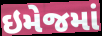
ઇમેજમાં